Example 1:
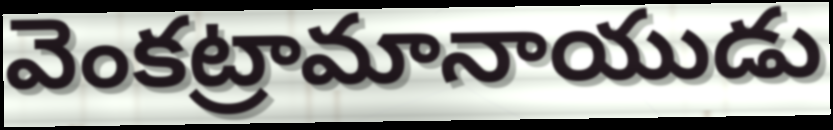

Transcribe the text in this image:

వెంకట్రామానాయుడు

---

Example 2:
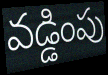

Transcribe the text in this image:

వడ్డింపు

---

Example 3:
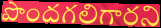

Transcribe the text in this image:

పొందగలిగారని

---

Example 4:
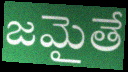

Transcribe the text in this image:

జమైతే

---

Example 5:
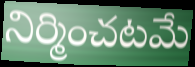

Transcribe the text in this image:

నిర్మించటమే